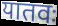
यातवः